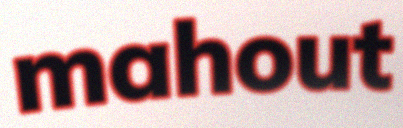
mahout